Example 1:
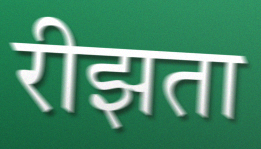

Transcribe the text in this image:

रीझता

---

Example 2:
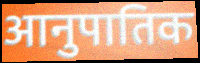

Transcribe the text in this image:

आनुपातिक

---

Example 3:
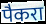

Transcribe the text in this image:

पैकरा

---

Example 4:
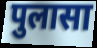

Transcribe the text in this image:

पुलासा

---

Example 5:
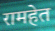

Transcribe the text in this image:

रामहेत